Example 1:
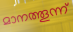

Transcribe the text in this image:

മാനത്തൂന്ന്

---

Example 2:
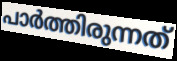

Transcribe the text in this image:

പാർത്തിരുന്നത്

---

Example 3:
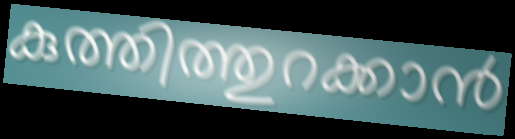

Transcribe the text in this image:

കുത്തിത്തുറക്കാൻ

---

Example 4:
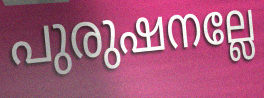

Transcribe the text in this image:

പുരുഷനല്ലേ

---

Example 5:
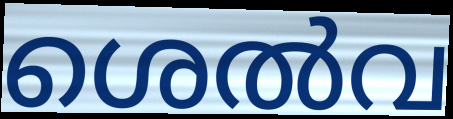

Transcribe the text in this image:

ശെൽവ